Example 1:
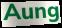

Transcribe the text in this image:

Aung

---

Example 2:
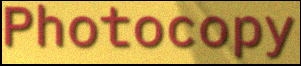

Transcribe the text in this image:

Photocopy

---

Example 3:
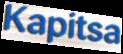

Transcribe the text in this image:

Kapitsa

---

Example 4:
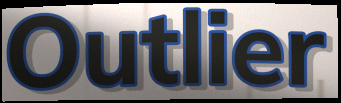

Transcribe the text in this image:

Outlier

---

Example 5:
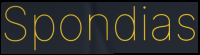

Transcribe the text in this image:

Spondias